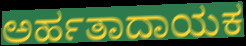
ಅರ್ಹತಾದಾಯಕ